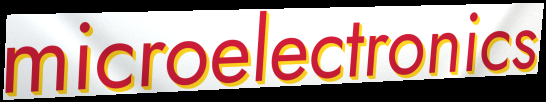
microelectronics